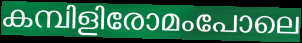
കമ്പിളിരോമംപോലെ